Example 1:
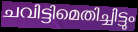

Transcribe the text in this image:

ചവിട്ടിമെതിച്ചിട്ടും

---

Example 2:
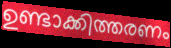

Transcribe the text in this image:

ഉണ്ടാക്കിത്തരണം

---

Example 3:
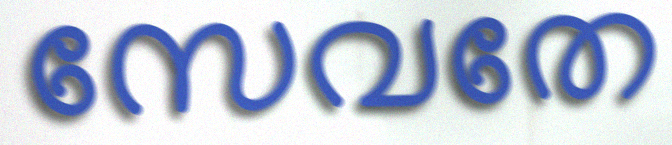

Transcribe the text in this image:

സേവതേ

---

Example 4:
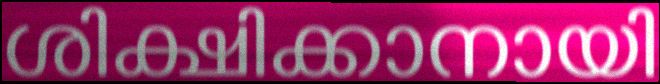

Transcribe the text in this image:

ശിക്ഷിക്കാനായി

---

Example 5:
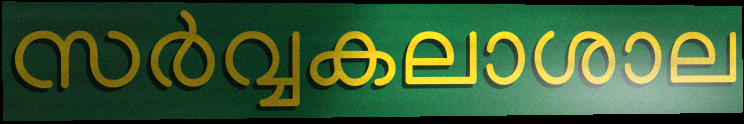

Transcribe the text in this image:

സർവ്വകലാശാല